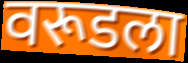
वरूडला